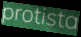
protista